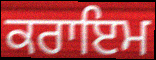
ਕਰਾਇਮ